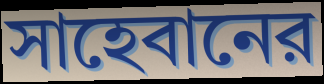
সাহেবানের